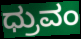
ಧ್ರುವಂ